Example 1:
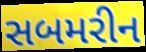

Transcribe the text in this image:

સબમરીન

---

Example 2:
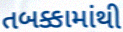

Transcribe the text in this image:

તબક્કામાંથી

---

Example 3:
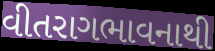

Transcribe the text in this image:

વીતરાગભાવનાથી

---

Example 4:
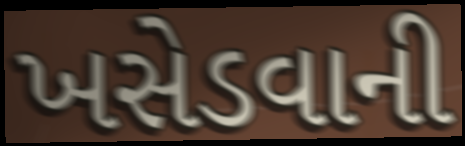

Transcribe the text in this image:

ખસેડવાની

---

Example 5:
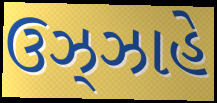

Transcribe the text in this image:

ઉઝ્ઝાહે